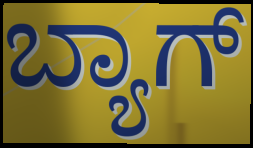
ಬ್ಯಾಗ್